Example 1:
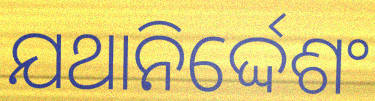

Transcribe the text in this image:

ଯଥାନିର୍ଦ୍ଦେଶଂ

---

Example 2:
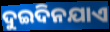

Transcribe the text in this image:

ଦୁଇଦିନଯାଏ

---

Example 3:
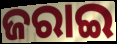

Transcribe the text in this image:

ଜରାଇ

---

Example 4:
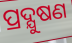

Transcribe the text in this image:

ପ୍ରଦ୍ଯୁଷଣ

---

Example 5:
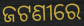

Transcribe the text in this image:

ଜଟଣୀରେ